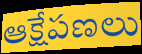
ఆక్షేపణలు